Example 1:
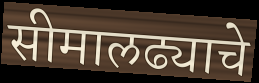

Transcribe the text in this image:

सीमालढ्याचे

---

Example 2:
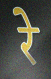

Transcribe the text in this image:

रे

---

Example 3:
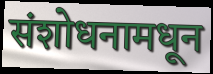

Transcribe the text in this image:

संशोधनामधून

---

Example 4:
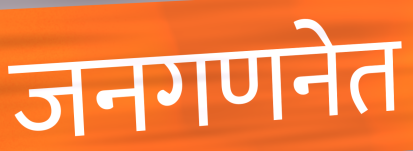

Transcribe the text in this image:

जनगणनेत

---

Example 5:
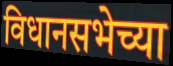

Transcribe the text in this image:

विधानसभेच्या